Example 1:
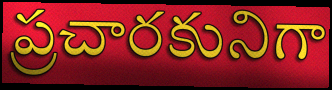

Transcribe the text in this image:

ప్రచారకునిగా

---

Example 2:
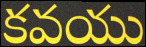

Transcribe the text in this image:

కవయు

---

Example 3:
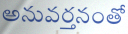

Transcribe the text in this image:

అనువర్తనంతో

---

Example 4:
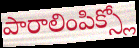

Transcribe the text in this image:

పారాలింపిక్స్లో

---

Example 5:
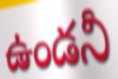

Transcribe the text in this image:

ఉండనీ